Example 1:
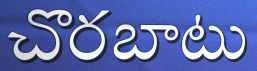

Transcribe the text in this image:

చొరబాటు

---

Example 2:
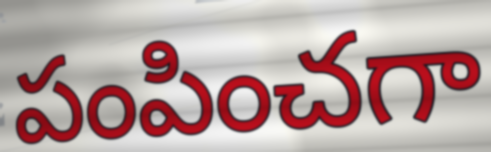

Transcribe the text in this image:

పంపించగా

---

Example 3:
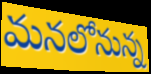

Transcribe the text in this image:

మనలోనున్న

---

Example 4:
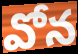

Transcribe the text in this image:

వోన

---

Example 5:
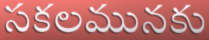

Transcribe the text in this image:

సకలమునకు